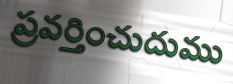
ప్రవర్తించుదుము